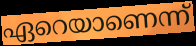
ഏറെയാണെന്ന്